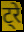
ट्रे